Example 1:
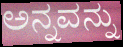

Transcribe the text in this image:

ಅನ್ನವನ್ನು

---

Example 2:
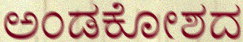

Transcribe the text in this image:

ಅಂಡಕೋಶದ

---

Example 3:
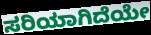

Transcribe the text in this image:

ಸರಿಯಾಗಿದೆಯೇ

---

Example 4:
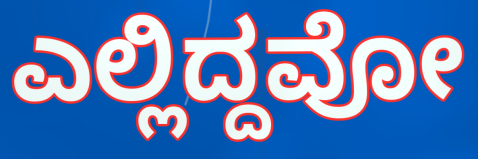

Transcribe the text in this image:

ಎಲ್ಲಿದ್ದವೋ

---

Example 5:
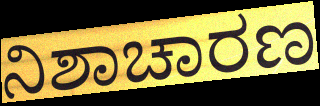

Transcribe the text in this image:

ನಿಶಾಚಾರಣ